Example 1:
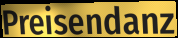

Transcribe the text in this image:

Preisendanz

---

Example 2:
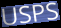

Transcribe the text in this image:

USPS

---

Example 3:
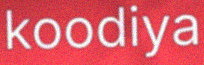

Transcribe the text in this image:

koodiya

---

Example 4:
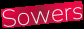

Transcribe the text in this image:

Sowers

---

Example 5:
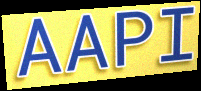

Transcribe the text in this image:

AAPI